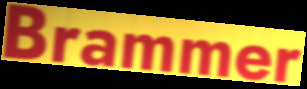
Brammer